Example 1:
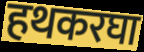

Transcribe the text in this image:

हथकरघा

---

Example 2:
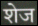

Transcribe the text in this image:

शेज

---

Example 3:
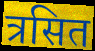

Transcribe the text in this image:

त्रसित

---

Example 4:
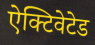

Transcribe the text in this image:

ऐक्टिवेटेड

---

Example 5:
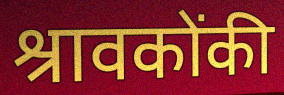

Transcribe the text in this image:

श्रावकोंकी